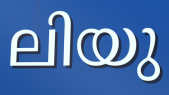
ലിയു